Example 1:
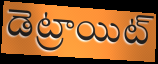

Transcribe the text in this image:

డెట్రాయిట్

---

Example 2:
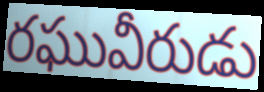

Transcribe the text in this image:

రఘువీరుడు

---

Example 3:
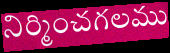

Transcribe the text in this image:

నిర్మించగలము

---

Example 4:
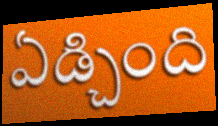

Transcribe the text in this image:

ఏడ్చింది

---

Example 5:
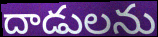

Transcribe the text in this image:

దాడులను